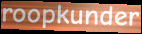
roopkunder